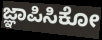
ಜ್ಞಾಪಿಸಿಕೋ